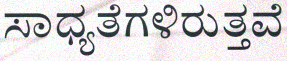
ಸಾಧ್ಯತೆಗಳಿರುತ್ತವೆ